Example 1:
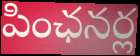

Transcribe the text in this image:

పింఛనర్ల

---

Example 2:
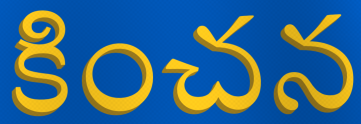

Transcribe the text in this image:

కించన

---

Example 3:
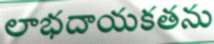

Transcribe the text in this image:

లాభదాయకతను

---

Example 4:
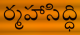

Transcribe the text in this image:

ర్మహాసిద్ధి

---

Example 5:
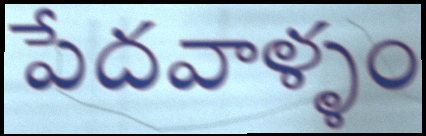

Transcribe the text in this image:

పేదవాళ్ళం